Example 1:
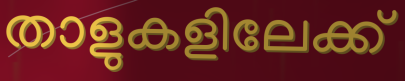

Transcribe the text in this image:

താളുകളിലേക്ക്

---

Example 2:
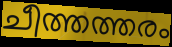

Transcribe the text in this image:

ചീത്തത്തരം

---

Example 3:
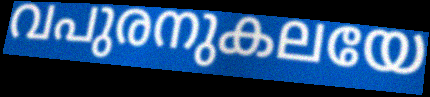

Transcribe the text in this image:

വപുരനുകലയേ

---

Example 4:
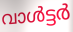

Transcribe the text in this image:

വാൾട്ടർ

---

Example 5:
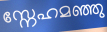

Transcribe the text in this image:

സ്നേഹമഞ്ഞു